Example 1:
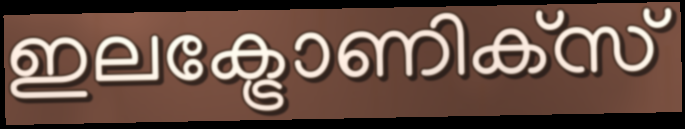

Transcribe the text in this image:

ഇലക്ട്രോണിക്‌സ്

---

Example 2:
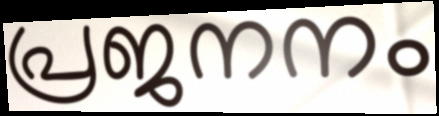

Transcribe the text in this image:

പ്രജനനം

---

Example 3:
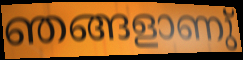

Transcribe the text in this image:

ഞങ്ങളാണു്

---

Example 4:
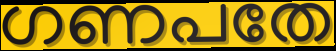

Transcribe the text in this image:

ഗണപതേ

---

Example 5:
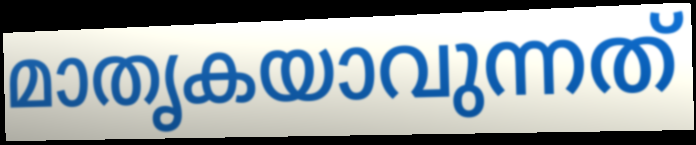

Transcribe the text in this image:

മാതൃകയാവുന്നത്